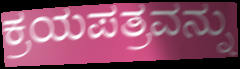
ಕ್ರಯಪತ್ರವನ್ನು